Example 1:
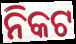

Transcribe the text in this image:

ନିକଟ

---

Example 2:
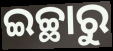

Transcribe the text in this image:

ଇଚ୍ଛାରୁ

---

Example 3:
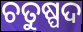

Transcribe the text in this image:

ଚତୁଷ୍ପଦ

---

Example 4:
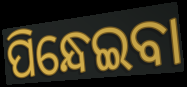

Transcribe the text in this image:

ପିନ୍ଧେଇବା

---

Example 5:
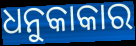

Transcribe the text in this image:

ଧନୁକାକାର